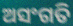
ଅସଂଗତି